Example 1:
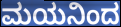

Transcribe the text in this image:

ಮಯನಿಂದ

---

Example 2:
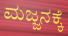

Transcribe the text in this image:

ಮಜ್ಜನಕ್ಕೆ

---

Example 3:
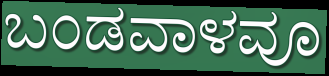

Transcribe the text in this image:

ಬಂಡವಾಳವೂ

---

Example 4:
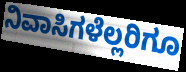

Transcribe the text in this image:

ನಿವಾಸಿಗಳೆಲ್ಲರಿಗೂ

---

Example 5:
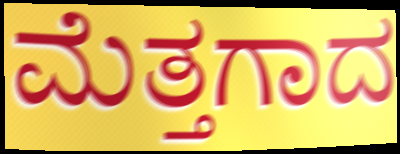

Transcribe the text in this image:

ಮೆತ್ತಗಾದ